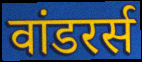
वांडरर्स